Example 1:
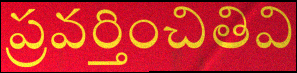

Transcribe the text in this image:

ప్రవర్తించితివి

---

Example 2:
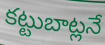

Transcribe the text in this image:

కట్టుబాట్లనే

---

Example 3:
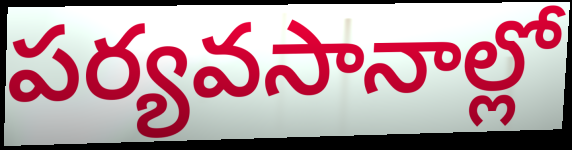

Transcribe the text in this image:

పర్యవసానాల్లో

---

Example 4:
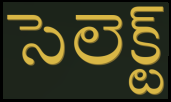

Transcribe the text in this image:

సెలెక్ట్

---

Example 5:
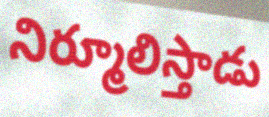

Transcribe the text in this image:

నిర్మూలిస్తాడు